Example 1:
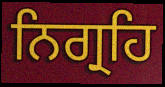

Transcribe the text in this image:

ਨਿਗ੍ਰਹਿ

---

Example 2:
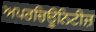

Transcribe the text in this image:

ਅਪਰਚਿਊਨਿਟੀਜ਼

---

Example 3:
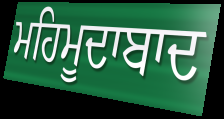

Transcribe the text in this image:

ਮਹਿਮੂਦਾਬਾਦ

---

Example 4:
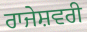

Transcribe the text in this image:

ਰਾਜੇਸ਼ਵਰੀ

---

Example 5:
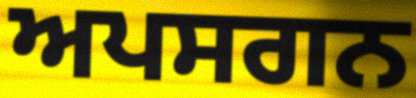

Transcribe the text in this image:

ਅਪਸਗਨ